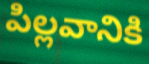
పిల్లవానికి